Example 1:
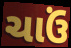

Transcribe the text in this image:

ચાઉં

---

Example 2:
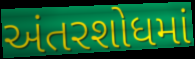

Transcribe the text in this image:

અંતરશોધમાં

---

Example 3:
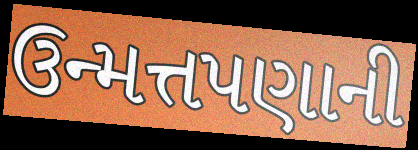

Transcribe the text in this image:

ઉન્મત્તપણાની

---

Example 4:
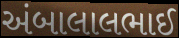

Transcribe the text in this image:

અંબાલાલભાઈ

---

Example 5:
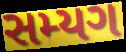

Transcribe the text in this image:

સમ્યગ